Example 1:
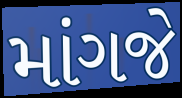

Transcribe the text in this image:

માંગજે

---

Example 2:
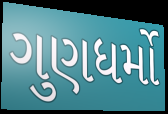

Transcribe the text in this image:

ગુણધર્મો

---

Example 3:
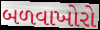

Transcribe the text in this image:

બળવાખોરો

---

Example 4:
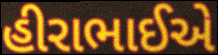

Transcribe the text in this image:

હીરાભાઈએ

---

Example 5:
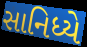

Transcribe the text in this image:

સાનિધ્યે